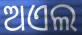
ଅଏଲ